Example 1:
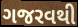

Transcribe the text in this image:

ગજરવથી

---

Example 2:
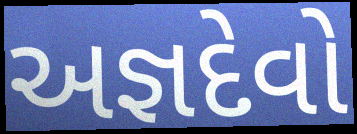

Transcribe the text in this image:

અજ્ઞદેવો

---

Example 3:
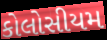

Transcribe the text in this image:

કોલોસીયમ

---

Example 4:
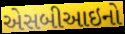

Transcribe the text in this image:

એસબીઆઇનો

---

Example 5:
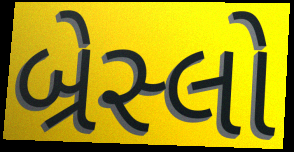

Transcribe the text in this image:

બ્રેસ્લો